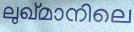
ലുഖ്മാനിലെ